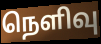
நெளிவு